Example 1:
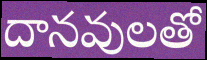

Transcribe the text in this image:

దానవులతో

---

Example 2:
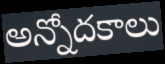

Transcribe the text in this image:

అన్నోదకాలు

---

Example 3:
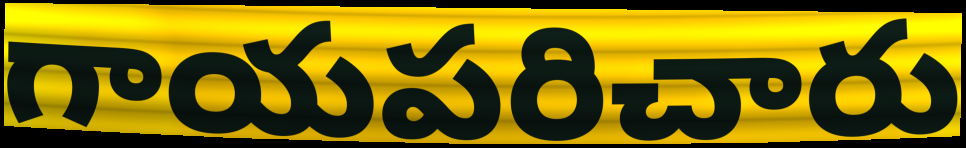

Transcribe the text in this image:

గాయపరిచారు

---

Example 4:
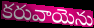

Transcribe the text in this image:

కరువాయెను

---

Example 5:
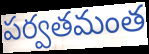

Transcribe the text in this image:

పర్వతమంత